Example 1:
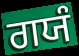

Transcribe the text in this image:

ਗਯੰ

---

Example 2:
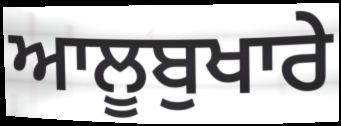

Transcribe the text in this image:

ਆਲੂਬੁਖਾਰੇ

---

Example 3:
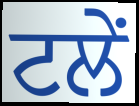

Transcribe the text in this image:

ਟਲੇਂ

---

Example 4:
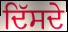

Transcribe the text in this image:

ਦਿੱਸਦੇ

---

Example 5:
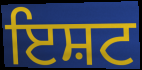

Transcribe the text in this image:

ਇਸ਼ਟ